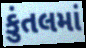
કુંતલમાં